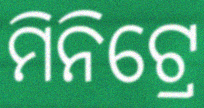
ମିନିଟ୍ରେ